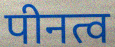
पीनत्व